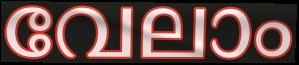
വേലാം